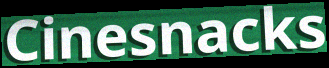
Cinesnacks